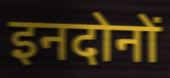
इनदोनों